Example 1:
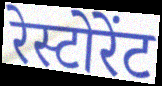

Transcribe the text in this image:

रेस्टोरेंट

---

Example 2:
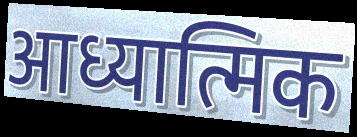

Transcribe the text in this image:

आध्यात्मिक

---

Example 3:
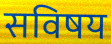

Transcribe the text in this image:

सविषय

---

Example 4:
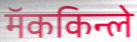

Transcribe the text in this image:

मॅककिन्ले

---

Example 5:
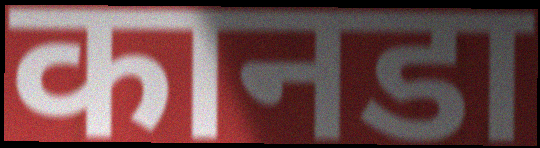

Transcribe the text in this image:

कानडा